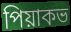
পিয়াকভ